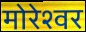
मोरेश्वर